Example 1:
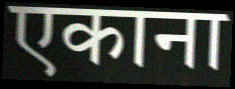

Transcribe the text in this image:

एकाना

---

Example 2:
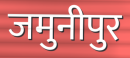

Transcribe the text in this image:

जमुनीपुर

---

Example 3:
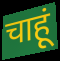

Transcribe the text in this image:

चाहूं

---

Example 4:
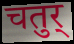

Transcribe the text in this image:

चतुर्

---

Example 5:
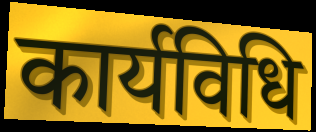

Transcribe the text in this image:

कार्यविधि